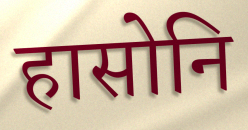
हासोनि